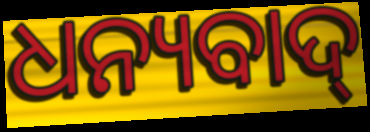
ଧନ୍ୟବାଦ୍